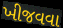
ખીજવવા